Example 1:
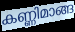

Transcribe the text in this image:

കണ്ണിമാങ്ങ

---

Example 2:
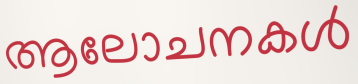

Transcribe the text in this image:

ആലോചനകൾ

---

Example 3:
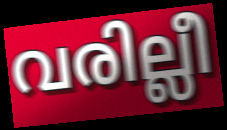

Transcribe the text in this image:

വരില്ലീ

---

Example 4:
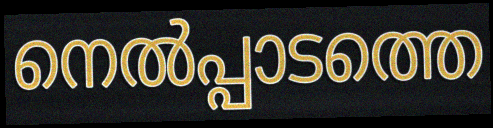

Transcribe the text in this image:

നെൽപ്പാടത്തെ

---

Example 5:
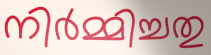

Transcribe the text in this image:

നിർമ്മിച്ചതു